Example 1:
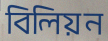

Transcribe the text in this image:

বিলিয়ন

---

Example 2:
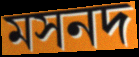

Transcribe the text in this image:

মসনদ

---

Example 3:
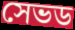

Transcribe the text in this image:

সেভড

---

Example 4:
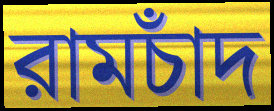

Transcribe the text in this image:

রামচাঁদ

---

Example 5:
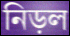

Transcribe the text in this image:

নিড়ল